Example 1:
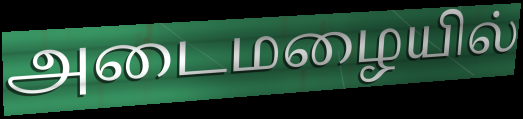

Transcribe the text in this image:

அடைமழையில்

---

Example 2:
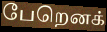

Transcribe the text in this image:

பேறெனக்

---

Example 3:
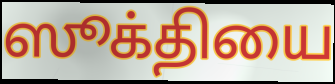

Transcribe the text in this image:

ஸூக்தியை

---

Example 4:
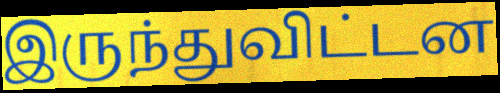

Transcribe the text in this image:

இருந்துவிட்டன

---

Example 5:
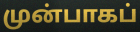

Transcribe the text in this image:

முன்பாகப்